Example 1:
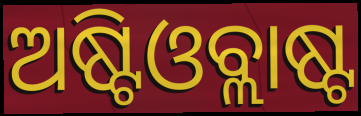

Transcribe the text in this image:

ଅଷ୍ଟିଓବ୍ଲାଷ୍ଟ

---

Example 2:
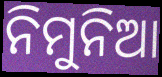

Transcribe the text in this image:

ନିମୁନିଆ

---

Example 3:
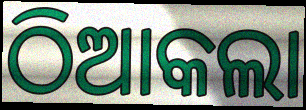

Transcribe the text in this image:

ଠିଆକଲା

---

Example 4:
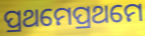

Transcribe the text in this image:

ପ୍ରଥମେପ୍ରଥମେ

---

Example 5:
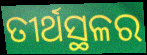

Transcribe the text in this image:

ତୀର୍ଥସ୍ଥଳର